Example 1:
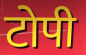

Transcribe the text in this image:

टोपी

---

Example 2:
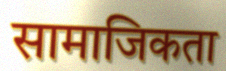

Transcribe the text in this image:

सामाजिकता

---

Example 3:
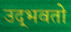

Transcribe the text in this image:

उद्‌भवतो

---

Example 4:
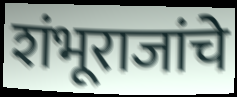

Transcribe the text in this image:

शंभूराजांचे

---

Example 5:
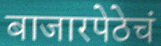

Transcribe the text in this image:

बाजारपेठेचं